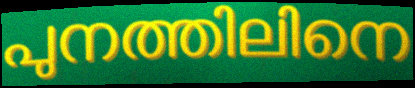
പുനത്തിലിനെ